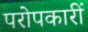
परोपकारीं